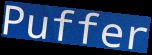
Puffer